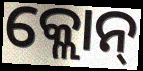
କ୍ଲୋନ୍